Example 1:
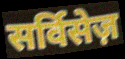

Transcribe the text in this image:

सर्विसेज़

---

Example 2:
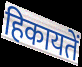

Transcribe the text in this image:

हिकायतें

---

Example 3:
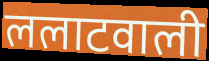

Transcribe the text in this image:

ललाटवाली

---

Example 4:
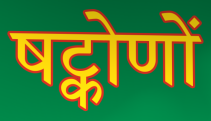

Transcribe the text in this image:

षट्कोणों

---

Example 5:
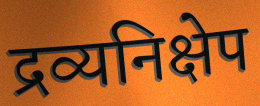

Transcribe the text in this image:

द्रव्यनिक्षेप